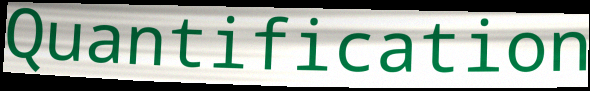
Quantification